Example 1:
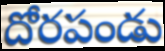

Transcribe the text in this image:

దోరపండు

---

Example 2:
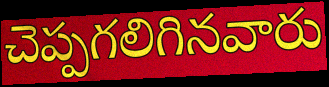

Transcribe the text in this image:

చెప్పగలిగినవారు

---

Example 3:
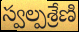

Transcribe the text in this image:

స్వల్పశ్రేణి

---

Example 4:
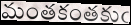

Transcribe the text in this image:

మంతకంతకుఁ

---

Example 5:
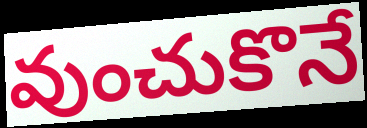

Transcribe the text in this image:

వుంచుకొనే